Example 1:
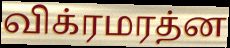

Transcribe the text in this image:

விக்ரமரத்ன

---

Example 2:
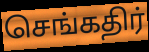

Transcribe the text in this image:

செங்கதிர்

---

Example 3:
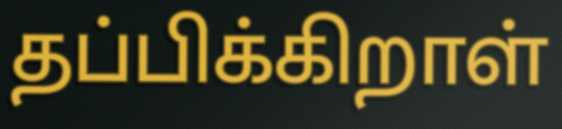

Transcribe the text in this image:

தப்பிக்கிறாள்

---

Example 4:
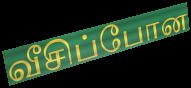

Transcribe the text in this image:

வீசிப்போன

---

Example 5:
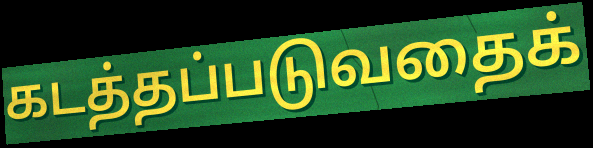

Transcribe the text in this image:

கடத்தப்படுவதைக்